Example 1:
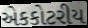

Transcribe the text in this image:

એકકોટરીય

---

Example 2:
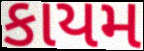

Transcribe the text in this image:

કાયમ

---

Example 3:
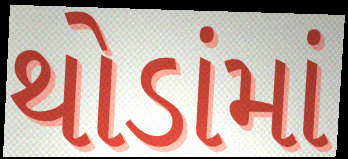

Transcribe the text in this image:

થોડાંમાં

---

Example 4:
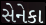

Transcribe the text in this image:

સેનેકા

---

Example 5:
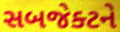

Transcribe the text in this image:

સબજેક્ટને